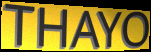
THAYO